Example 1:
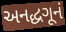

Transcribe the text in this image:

અનદ્ધગૂનં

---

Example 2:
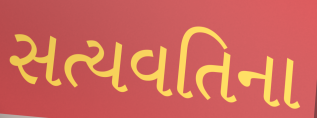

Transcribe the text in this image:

સત્યવતિના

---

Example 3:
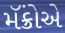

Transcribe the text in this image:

મૅંક્રોએ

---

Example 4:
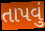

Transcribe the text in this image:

તાપવું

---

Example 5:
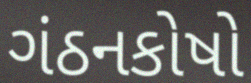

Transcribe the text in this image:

ગંઠનકોષો